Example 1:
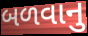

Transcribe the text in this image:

બળવાનુ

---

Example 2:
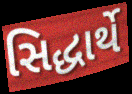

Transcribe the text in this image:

સિદ્ધાર્થે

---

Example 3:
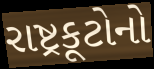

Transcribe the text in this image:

રાષ્ટ્રકૂટોનો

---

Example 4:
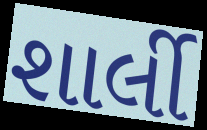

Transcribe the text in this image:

શાર્લી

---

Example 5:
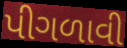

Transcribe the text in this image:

પીગળાવી